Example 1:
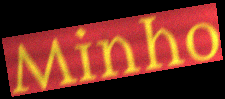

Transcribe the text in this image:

Minho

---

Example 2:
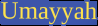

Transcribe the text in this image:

Umayyah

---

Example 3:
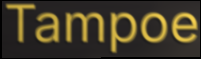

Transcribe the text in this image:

Tampoe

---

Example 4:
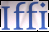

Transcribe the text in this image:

Iffi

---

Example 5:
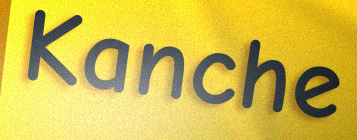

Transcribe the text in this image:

Kanche